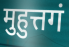
मुहुत्तगं